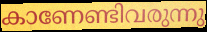
കാണേണ്ടിവരുന്നു